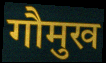
गौमुख